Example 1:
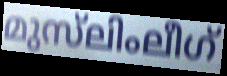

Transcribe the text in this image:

മുസ്‌ലിംലീഗ്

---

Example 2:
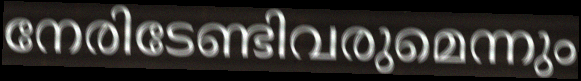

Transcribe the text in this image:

നേരിടേണ്ടിവരുമെന്നും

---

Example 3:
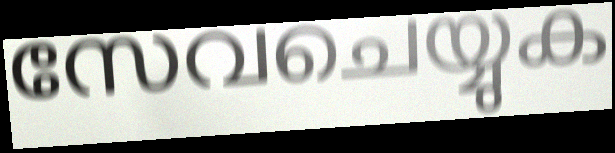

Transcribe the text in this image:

സേവചെയ്യുക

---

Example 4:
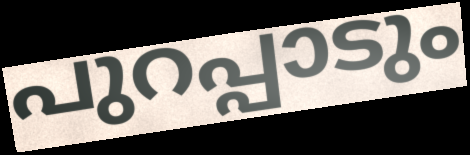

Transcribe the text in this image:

പുറപ്പാടും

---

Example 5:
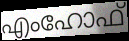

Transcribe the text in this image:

എംഹോഫ്